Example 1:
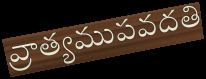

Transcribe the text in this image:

వ్రాత్యముపవదతి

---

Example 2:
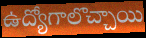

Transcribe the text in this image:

ఉద్యోగాలొచ్చాయి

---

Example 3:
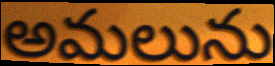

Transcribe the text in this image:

అమలును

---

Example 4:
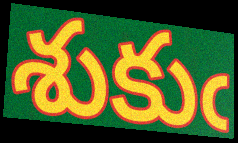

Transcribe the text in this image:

శుకుఁ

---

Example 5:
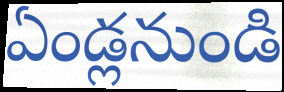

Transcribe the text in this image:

ఏండ్లనుండి